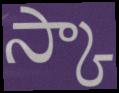
స్కా